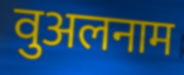
वुअलनाम